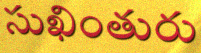
సుఖింతురు